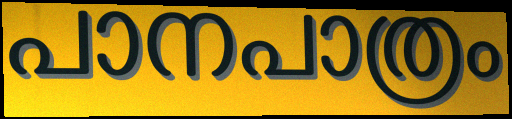
പാനപാത്രം